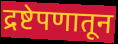
द्रष्टेपणातून